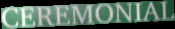
CEREMONIAL